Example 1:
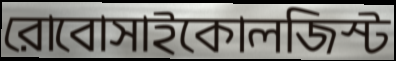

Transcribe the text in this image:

রোবোসাইকোলজিস্ট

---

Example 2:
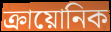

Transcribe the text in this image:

ক্রায়োনিক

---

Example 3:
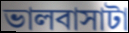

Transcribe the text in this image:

ভালবাসাটা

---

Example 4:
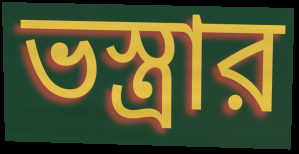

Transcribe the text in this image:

ভস্ত্রার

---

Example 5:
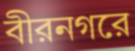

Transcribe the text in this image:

বীরনগরে